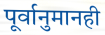
पूर्वानुमानही